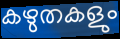
കഴുതകളും